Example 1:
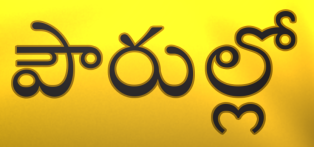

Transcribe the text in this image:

పౌరుల్లో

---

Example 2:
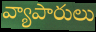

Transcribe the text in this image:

వ్యాపారులు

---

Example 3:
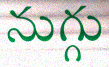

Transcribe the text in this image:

నుగ్గు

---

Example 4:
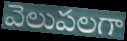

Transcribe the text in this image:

వెలుపలగా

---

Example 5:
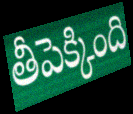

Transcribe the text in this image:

తీపెక్కింది